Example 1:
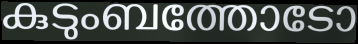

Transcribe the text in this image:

കുടുംബത്തോടോ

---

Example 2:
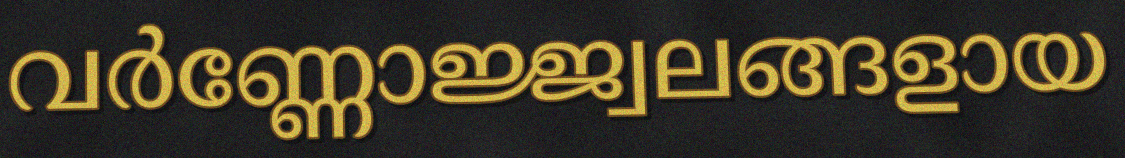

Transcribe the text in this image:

വർണ്ണോജ്ജ്വലങ്ങളായ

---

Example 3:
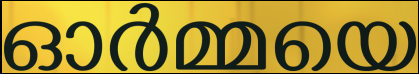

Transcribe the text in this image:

ഓർമ്മയെ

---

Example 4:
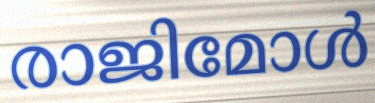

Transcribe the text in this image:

രാജിമോൾ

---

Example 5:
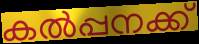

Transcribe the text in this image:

കൽപ്പനക്ക്